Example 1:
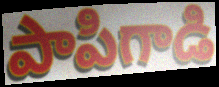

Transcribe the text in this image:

పాపిగాడి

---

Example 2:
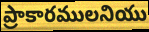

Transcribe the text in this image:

ప్రాకారములనియు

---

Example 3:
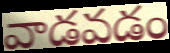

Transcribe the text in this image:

వాడవడం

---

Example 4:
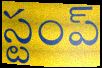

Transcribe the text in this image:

స్టంప్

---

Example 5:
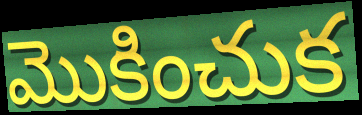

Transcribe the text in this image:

మొకించుక